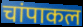
चांपाकल